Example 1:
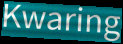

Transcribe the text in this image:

Kwaring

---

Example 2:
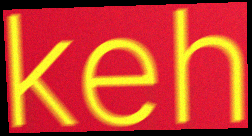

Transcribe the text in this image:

keh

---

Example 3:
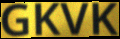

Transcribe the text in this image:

GKVK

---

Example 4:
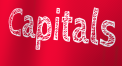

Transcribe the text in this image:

Capitals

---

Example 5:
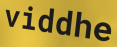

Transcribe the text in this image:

viddhe